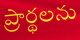
ప్రార్థలను